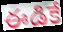
ఈడికే